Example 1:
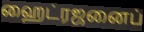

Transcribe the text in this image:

ஹைட்ரஜனைப்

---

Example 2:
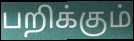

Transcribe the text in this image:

பறிக்கும்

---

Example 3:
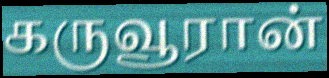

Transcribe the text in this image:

கருவூரான்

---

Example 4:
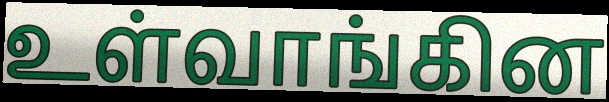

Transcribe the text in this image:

உள்வாங்கின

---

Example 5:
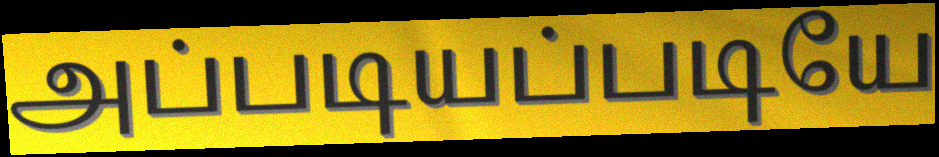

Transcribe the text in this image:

அப்படியப்படியே